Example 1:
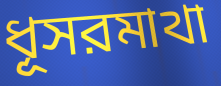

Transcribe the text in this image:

ধূসরমাথা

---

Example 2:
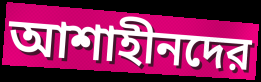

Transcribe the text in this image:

আশাহীনদের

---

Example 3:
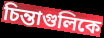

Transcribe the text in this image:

চিন্তাগুলিকে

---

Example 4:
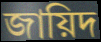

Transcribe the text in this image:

জায়িদ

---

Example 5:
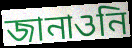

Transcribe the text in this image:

জানাওনি